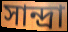
সান্দ্রা